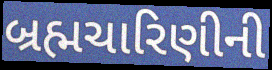
બ્રહ્મચારિણીની